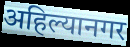
अहिल्यानगर